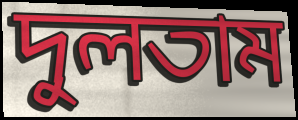
দুলতাম